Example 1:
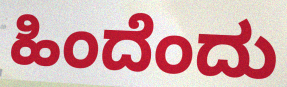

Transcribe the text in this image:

ಹಿಂದೆಂದು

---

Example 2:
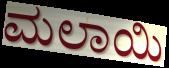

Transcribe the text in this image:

ಮಲಾಯಿ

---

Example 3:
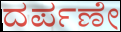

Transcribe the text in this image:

ದರ್ಪಣೇ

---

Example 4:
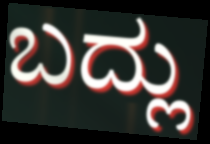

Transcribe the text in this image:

ಬದ್ಲು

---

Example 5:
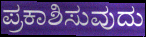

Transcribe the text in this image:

ಪ್ರಕಾಶಿಸುವುದು